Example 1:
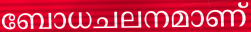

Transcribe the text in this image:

ബോധചലനമാണ്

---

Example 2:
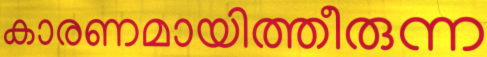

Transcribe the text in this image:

കാരണമായിത്തീരുന്ന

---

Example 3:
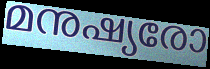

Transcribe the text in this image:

മനുഷ്യരോ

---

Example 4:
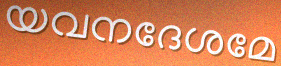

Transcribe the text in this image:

യവനദേശമേ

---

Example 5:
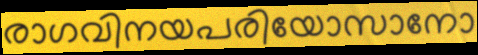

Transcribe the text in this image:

രാഗവിനയപരിയോസാനോ